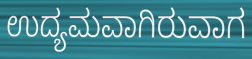
ಉದ್ಯಮವಾಗಿರುವಾಗ